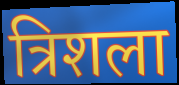
त्रिशला